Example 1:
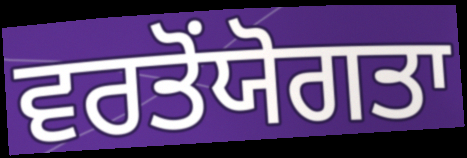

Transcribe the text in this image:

ਵਰਤੋਂਯੋਗਤਾ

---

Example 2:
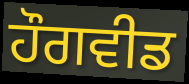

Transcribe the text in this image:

ਹੌਗਵੀਡ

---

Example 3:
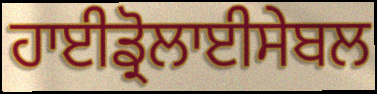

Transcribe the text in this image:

ਹਾਈਡ੍ਰੋਲਾਈਸੇਬਲ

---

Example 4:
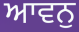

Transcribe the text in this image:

ਆਵਨੁ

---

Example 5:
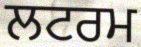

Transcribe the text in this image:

ਲਟਰਮ